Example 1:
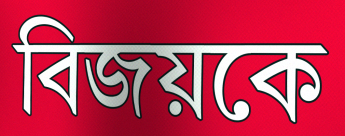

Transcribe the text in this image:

বিজয়কে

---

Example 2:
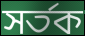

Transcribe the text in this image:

সর্তক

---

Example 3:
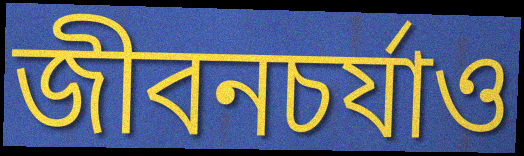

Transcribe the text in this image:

জীবনচর্যাও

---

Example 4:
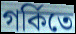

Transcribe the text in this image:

গর্কিতে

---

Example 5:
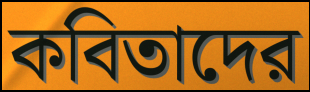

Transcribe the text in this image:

কবিতাদের